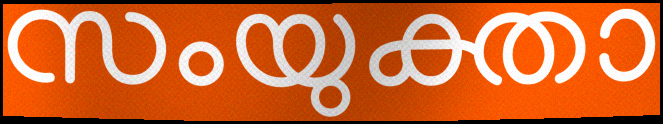
സംയുക്താ